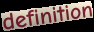
definition